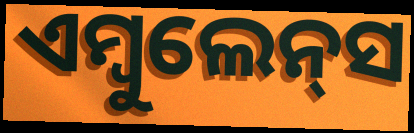
ଏମ୍ବୁଲେନ୍‌ସ